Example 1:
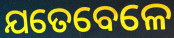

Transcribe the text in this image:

ଯତେବେଳେ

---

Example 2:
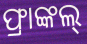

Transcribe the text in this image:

ଫ୍ରାଙ୍କଲ୍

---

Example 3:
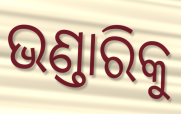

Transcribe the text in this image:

ଭଣ୍ଡାରିକୁ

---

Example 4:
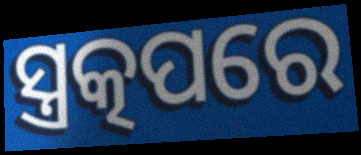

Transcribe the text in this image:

ସ୍ତ୍ରତ୍କପରେ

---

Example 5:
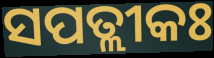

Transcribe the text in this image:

ସପତ୍ଲୀକଃ